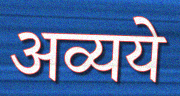
अव्यये